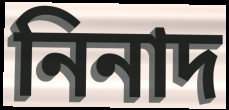
নিনাদ